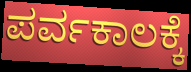
ಪರ್ವಕಾಲಕ್ಕೆ